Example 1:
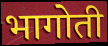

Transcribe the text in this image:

भागोती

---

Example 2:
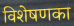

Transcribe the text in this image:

विशेषणका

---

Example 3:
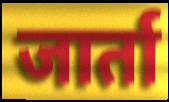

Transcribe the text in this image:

जार्ता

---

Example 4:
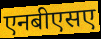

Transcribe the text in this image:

एनबीएसए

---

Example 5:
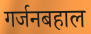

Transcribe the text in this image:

गर्जनबहाल